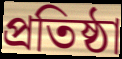
প্ৰতিষ্ঠা